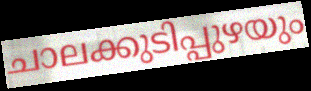
ചാലക്കുടിപ്പുഴയും